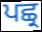
ਪਛ੍ਰ